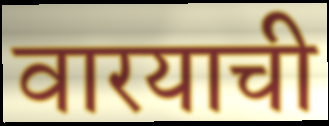
वारयाची